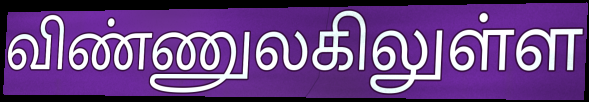
விண்ணுலகிலுள்ள